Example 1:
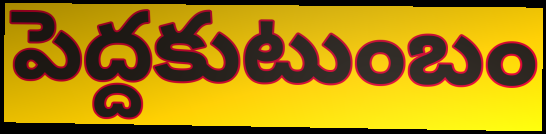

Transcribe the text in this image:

పెద్దకుటుంబం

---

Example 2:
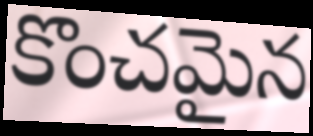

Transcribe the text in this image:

కొంచమైన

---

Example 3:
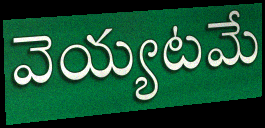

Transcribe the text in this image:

వెయ్యటమే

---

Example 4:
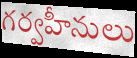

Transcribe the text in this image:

గర్వహీనులు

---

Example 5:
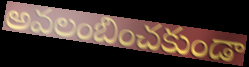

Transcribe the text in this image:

అవలంబించకుండా